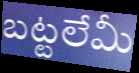
బట్టలేమీ